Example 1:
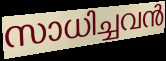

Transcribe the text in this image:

സാധിച്ചവൻ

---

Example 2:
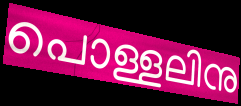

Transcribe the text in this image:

പൊള്ളലിനു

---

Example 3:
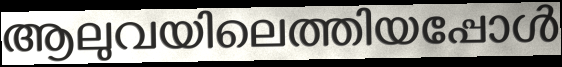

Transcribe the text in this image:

ആലുവയിലെത്തിയപ്പോൾ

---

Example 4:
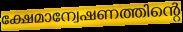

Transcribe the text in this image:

ക്ഷേമാന്വേഷണത്തിന്റെ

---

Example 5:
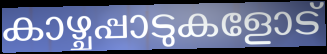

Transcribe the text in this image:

കാഴ്ചപ്പാടുകളോട്